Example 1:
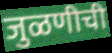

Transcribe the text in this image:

जुळणीची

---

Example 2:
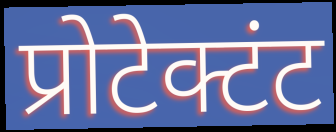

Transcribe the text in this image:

प्रोटेक्टंट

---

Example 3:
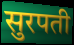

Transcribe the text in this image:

सुरपती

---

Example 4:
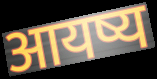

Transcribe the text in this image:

आयष्य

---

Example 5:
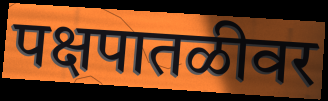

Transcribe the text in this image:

पक्षपातळीवर